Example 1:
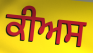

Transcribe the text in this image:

ਕੀਅਸ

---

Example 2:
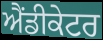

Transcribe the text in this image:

ਐਂਡੀਕੇਟਰ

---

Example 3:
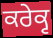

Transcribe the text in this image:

ਕਰੇਕ੍ਟ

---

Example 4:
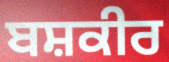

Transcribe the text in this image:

ਬਸ਼ਕੀਰ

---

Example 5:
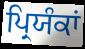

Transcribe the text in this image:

ਪ੍ਰਿਯੰਕਾਂ